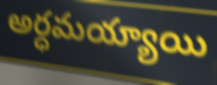
అర్ధమయ్యాయి